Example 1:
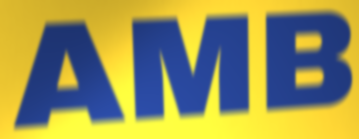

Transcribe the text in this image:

AMB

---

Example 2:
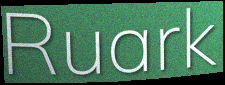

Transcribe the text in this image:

Ruark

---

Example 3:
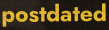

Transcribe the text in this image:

postdated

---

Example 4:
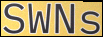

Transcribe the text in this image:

SWNs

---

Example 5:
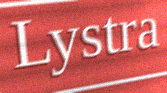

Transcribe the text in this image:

Lystra